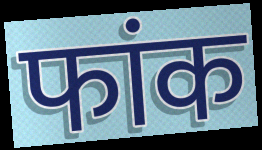
फांक